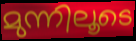
മുന്നിലൂടെ